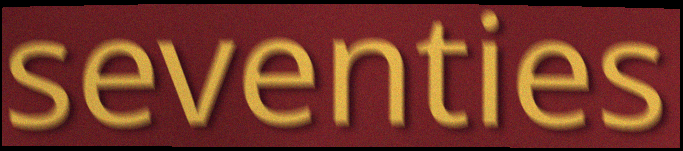
seventies